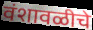
वंशावळीचे